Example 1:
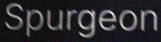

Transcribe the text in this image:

Spurgeon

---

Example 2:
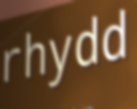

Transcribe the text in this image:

rhydd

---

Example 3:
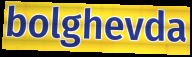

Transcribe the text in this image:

bolghevda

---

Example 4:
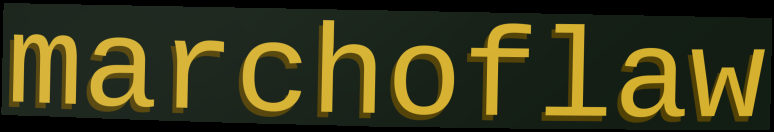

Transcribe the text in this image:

marchoflaw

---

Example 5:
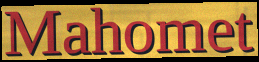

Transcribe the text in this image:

Mahomet